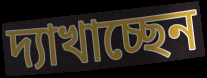
দ্যাখাচ্ছেন